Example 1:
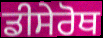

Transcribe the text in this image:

ਡੀਸੇਰੋਥ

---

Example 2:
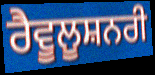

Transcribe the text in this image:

ਰੈਵੂਲੂਸ਼ਨਰੀ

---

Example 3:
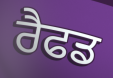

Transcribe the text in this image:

ਰੈਫਡ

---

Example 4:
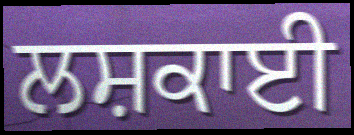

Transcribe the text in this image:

ਲਸ਼ਕਾਈ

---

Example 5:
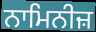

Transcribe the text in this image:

ਨਾਮਿਨੀਜ਼